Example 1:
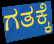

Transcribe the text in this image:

ಗತಕ್ಕೆ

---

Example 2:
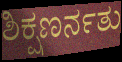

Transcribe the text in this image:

ಶಿಕ್ಷಣರ್ನತು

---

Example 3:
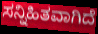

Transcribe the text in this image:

ಸನ್ನಿಹಿತವಾಗಿದೆ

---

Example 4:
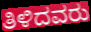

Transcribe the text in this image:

ತಿಳಿದವರು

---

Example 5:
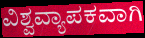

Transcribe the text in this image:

ವಿಶ್ವವ್ಯಾಪಕವಾಗಿ